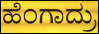
ಹೆಂಗಾದ್ರು